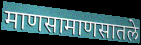
माणसामाणसातले